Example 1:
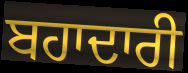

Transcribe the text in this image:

ਬਹਾਦਾਰੀ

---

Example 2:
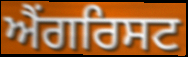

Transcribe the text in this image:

ਐਂਗਰਿਸਟ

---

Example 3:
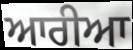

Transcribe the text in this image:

ਆਰੀਆ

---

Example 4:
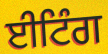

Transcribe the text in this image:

ਈਟਿੰਗ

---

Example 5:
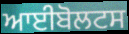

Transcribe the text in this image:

ਆਈਬੋਲਟਸ